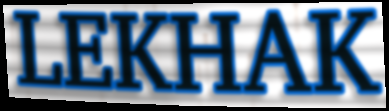
LEKHAK